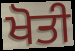
ਖੋਤੀ